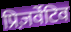
प्रिज़र्वेटिव